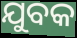
ଯୁବକ